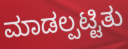
ಮಾಡಲ್ಪಟ್ಟಿತು